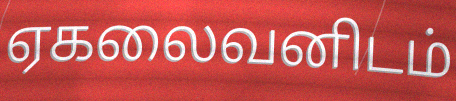
ஏகலைவனிடம்